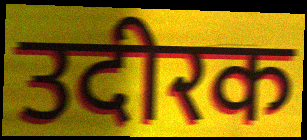
उदीरक